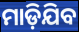
ମାଡ଼ିଯିବ